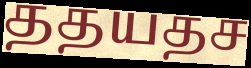
ததயதச